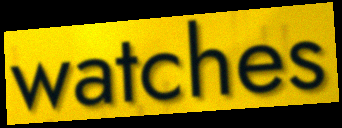
watches